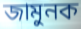
জামুনক